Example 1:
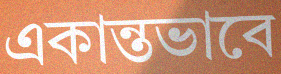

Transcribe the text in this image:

একান্তভাবে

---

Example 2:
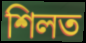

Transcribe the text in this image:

শিলত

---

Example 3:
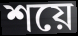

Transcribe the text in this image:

শয়ে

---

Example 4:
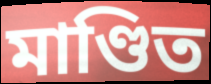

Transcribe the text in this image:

মাণ্ডিত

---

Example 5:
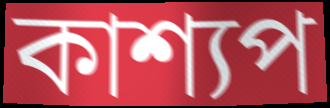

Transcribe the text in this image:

কাশ্যপ